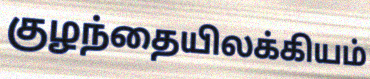
குழந்தையிலக்கியம்